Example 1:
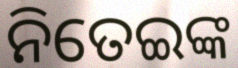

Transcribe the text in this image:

ନିତେଇଙ୍କ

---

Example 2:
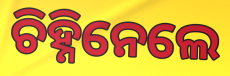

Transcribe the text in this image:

ଚିହ୍ନିନେଲେ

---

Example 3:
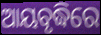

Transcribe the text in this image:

ଆୟବୃଦ୍ଧିରେ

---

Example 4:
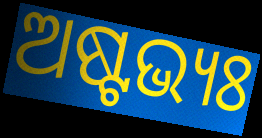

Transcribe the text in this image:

ଅଷ୍ଟଭ୍ୟଃ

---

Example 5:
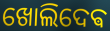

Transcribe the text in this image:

ଖୋଲିଦେଵ